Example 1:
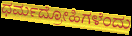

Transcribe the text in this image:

ಧರ್ಮದ್ರೋಹಿಗಳೆಂದು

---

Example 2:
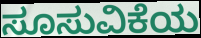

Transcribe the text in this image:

ಸೂಸುವಿಕೆಯ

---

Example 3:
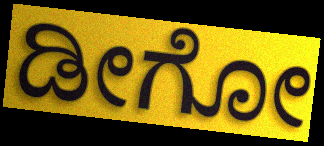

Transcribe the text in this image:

ಡೀಗೋ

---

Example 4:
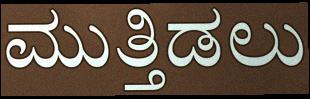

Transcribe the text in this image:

ಮುತ್ತಿಡಲು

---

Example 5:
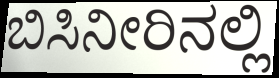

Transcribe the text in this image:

ಬಿಸಿನೀರಿನಲ್ಲಿ